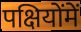
पक्षियोंमें